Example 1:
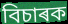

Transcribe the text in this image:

বিচাৰক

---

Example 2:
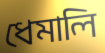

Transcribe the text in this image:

ধেমালি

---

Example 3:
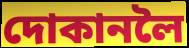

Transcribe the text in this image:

দোকানলৈ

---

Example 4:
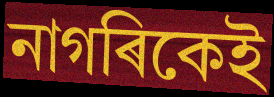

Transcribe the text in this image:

নাগৰিকেই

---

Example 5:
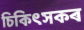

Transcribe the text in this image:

চিকিৎসকৰ